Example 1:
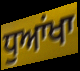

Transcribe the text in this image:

ਧੁਆਂਖਾ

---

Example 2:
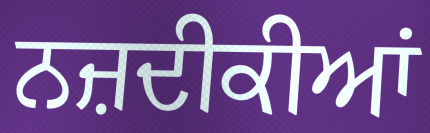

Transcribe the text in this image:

ਨਜ਼ਦੀਕੀਆਂ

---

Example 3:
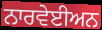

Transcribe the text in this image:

ਨਾਰਵੇਈਅਨ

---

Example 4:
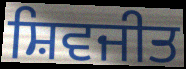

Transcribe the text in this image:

ਸ਼ਿਵਜੀਤ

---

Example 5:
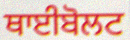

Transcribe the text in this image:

ਥਾਈਬੋਲਟ